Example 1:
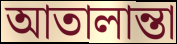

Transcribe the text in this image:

আতালান্তা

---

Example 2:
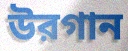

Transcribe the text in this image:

উরগান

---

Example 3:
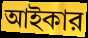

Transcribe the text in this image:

আইকার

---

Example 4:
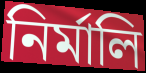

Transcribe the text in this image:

নির্মালি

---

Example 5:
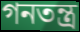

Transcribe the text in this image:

গনতন্ত্র